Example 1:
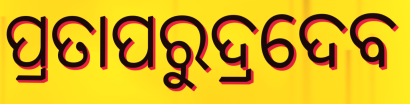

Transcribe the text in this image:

ପ୍ରତାପରୁଦ୍ରଦେବ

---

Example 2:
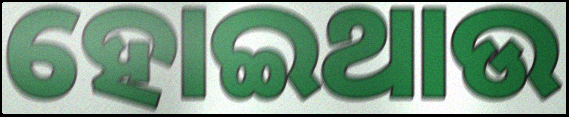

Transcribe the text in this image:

ହୋଇଥାଉ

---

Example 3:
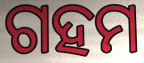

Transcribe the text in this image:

ଗହମ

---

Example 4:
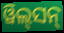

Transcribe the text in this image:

ୱିଲ୍‌ସନ୍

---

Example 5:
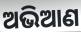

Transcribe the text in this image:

ଅଭିଆଣ